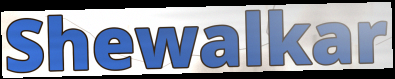
Shewalkar